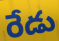
రేడు